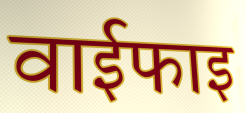
वाईफाइ